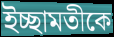
ইচ্ছামতীকে